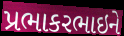
પ્રભાકરભાઇને